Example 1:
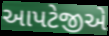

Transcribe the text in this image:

આપટેજીએ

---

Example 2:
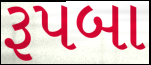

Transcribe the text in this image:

રૂપબા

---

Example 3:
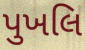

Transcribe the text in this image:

પુખલિ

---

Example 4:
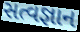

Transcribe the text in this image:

સત્વજ્ઞાન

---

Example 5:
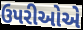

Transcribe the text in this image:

ઉપરીઓએ